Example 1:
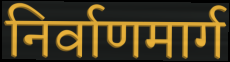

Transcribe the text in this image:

निर्वाणमार्ग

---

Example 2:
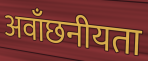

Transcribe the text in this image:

अवाँछनीयता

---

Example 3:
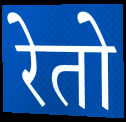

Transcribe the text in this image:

रेतो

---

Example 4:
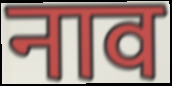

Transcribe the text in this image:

नाव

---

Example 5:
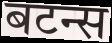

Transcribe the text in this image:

बटन्स